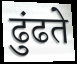
ढुंढते